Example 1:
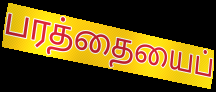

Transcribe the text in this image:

பரத்தையைப்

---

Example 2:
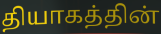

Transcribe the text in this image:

தியாகத்தின்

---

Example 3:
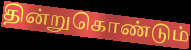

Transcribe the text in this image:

தின்றுகொண்டும்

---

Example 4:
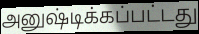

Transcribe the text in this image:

அனுஷ்டிக்கப்பட்டது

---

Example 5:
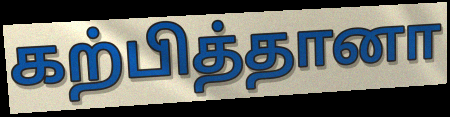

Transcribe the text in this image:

கற்பித்தானா